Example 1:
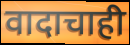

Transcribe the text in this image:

वादाचाही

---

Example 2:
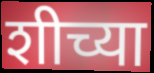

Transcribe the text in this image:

शीच्या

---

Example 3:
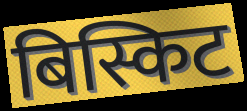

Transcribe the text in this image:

बिस्किट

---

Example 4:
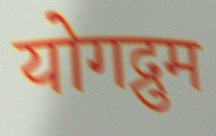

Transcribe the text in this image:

योगद्रुम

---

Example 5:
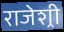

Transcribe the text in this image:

राजेश्री